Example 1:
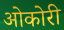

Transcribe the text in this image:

ओकोरी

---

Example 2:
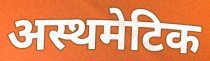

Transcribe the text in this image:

अस्थमेटिक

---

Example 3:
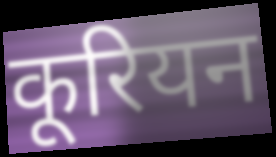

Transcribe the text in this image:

कूरियन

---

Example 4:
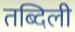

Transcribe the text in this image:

तब्दिली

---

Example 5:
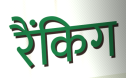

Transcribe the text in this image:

रैंकिग